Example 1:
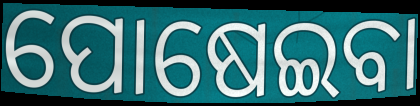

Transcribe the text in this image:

ପୋଷେଇବା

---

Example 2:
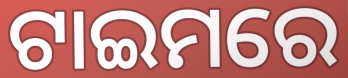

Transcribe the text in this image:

ଟାଇମରେ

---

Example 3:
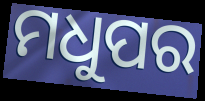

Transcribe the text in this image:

ମଧୁପର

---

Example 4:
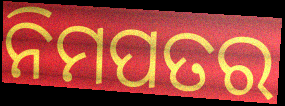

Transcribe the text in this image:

ନିମପତର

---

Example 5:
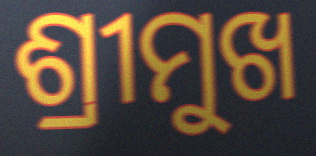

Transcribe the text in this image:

ଶ୍ରୀମୁଖ